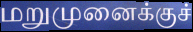
மறுமுனைக்குச்